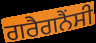
ਗਰੈਗਨੈਂਸੀ